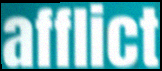
afflict